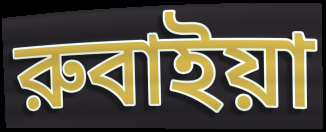
রুবাইয়া